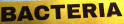
BACTERIA